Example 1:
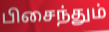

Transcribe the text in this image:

பிசைந்தும்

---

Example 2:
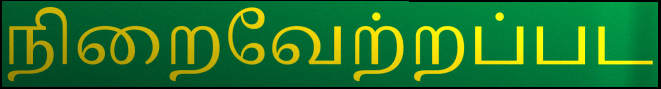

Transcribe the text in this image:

நிறைவேற்றப்பட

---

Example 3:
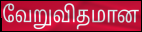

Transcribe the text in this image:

வேறுவிதமான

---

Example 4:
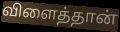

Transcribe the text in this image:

விளைத்தான்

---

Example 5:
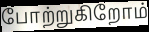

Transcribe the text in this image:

போற்றுகிறோம்